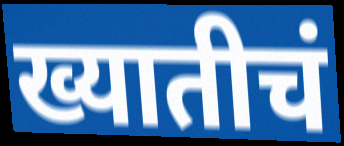
ख्यातीचं